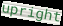
upright